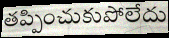
తప్పించుకుపోలేదు